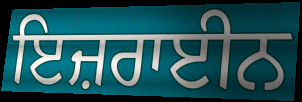
ਇਜ਼ਰਾਈਨ